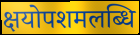
क्षयोपशमलब्धि